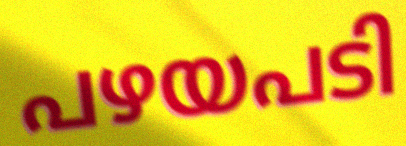
പഴയപടി